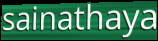
sainathaya